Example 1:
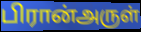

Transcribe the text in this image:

பிரான்அருள்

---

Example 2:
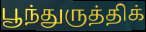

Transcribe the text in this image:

பூந்துருத்திக்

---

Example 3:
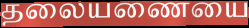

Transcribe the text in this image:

தலையணையை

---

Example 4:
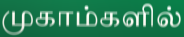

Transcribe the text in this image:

முகாம்களில்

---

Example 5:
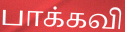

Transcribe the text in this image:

பாக்கவி